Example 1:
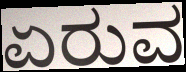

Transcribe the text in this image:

ಏರುವ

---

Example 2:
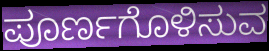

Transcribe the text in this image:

ಪೂರ್ಣಗೊಳಿಸುವ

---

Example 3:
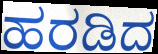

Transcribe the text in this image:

ಹರಡಿದ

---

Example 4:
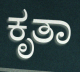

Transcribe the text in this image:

ಕೃತಾ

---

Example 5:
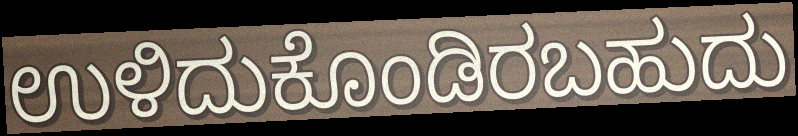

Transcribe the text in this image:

ಉಳಿದುಕೊಂಡಿರಬಹುದು